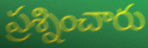
ప్రశ్నించారు